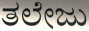
ತಲೇಜು